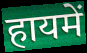
हायमें